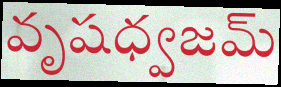
వృషధ్వజమ్